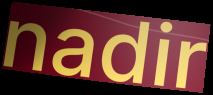
nadir